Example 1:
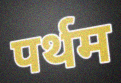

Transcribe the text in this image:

पर्थम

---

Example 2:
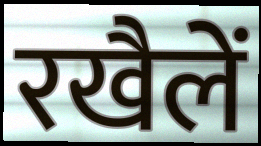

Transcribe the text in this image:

रखैलें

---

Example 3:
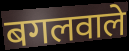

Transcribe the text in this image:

बगलवाले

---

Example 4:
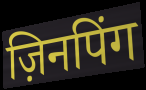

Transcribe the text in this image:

ज़िनपिंग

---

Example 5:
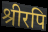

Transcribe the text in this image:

श्रीरपि